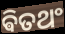
ଵିତଥଂ